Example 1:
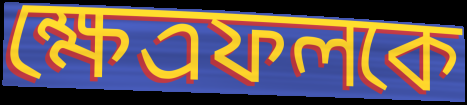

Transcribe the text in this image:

ক্ষেত্রফলকে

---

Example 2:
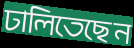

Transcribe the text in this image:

ঢালিতেছেন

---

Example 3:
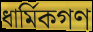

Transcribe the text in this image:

ধার্মিকগণ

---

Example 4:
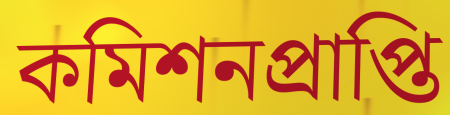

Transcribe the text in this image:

কমিশনপ্রাপ্তি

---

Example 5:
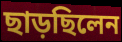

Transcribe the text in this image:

ছাড়ছিলেন